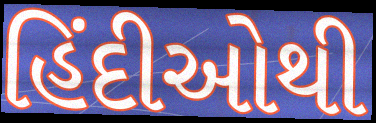
હિંદીઓથી